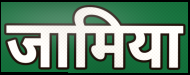
जामिया